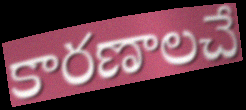
కారణాలచే